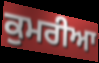
ਕੁਮਰੀਆ